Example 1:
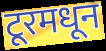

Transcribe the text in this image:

टूरमधून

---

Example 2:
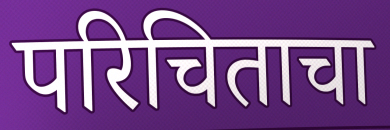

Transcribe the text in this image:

परिचिताचा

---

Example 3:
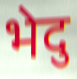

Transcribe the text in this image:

भेदु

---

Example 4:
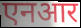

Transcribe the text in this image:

एनआर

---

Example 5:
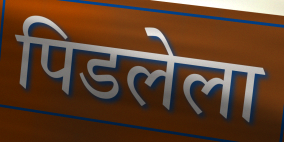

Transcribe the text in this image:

पिडलेला